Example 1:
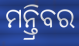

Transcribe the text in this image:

ମନ୍ତ୍ରିବର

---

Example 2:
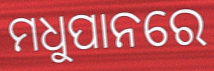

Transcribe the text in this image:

ମଧୁପାନରେ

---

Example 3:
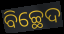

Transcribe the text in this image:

ବିଚ୍ଛେଦ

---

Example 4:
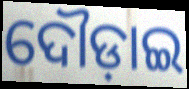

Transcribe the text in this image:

ଦୌଡ଼ାଇ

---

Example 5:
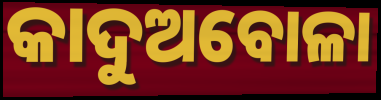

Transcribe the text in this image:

କାଦୁଅବୋଳା